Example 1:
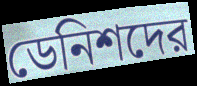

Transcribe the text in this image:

ডেনিশদের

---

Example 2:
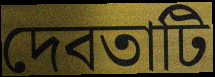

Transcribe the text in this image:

দেবতাটি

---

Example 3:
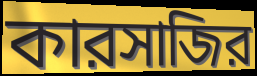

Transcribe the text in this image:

কারসাজির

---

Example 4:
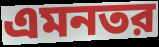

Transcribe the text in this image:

এমনতর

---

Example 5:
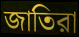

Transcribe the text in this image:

জাতিরা